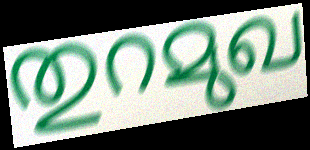
തുറമുഖ